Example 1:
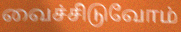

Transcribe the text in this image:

வைச்சிடுவோம்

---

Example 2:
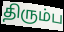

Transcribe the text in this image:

திரும்ப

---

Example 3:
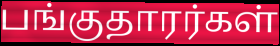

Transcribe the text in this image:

பங்குதாரர்கள்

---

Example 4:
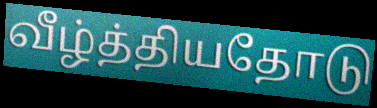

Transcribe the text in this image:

வீழ்த்தியதோடு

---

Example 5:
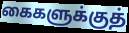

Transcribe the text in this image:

கைகளுக்குத்